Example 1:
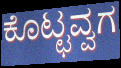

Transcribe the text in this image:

ಕೊಟ್ಟವ್ವಗ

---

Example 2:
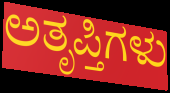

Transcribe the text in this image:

ಅತೃಪ್ತಿಗಳು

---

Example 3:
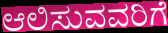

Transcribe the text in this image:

ಆಲಿಸುವವರಿಗೆ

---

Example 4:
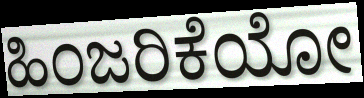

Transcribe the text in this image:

ಹಿಂಜರಿಕೆಯೋ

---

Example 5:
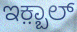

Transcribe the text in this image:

ಇಕ಼್ಬಾಲ್